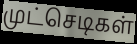
முட்செடிகள்